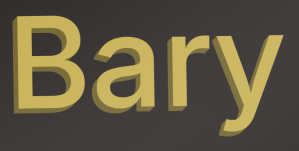
Bary